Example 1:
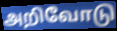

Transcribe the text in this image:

அறிவோடு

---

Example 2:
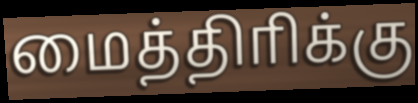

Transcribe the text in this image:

மைத்திரிக்கு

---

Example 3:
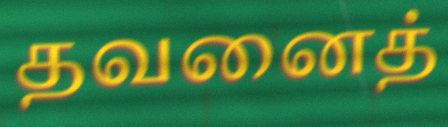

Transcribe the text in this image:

தவனைத்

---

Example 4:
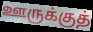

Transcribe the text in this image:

ஊருக்குத்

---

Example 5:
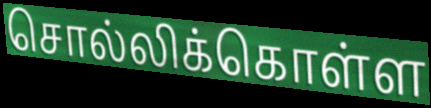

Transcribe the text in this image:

சொல்லிக்கொள்ள